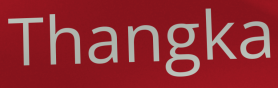
Thangka